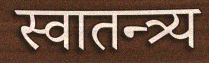
स्वातन्त्र्य